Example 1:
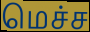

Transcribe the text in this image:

மெச்ச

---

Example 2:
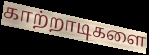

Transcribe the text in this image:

காற்றாடிகளை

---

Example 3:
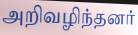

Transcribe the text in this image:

அறிவழிந்தனர்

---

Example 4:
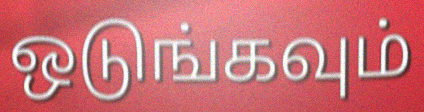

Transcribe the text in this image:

ஒடுங்கவும்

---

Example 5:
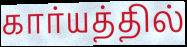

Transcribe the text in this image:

கார்யத்தில்